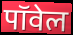
पॉवेल